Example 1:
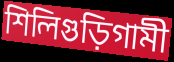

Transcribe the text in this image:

শিলিগুড়িগামী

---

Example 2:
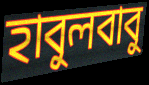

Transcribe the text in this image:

হাবুলবাবু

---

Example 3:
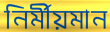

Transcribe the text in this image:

নির্মীয়মান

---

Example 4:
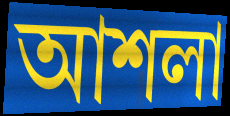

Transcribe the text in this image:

আশলা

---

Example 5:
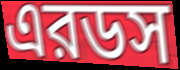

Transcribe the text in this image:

এরডস